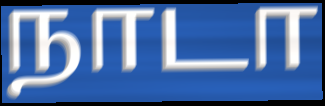
நாடா